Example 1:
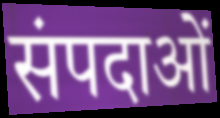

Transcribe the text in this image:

संपदाओं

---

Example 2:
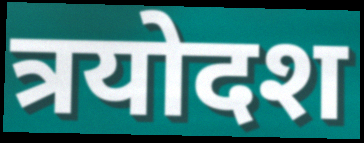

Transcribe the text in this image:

त्रयोदश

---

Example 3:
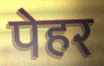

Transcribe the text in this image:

पेहर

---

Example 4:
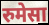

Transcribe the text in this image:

रुमेसा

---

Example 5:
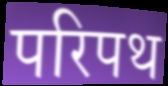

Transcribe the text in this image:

परिपथ